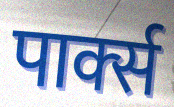
पार्क्‍स